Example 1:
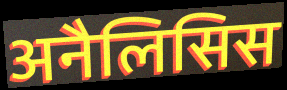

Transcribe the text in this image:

अनैलिसिस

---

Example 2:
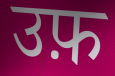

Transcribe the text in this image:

उफ़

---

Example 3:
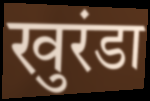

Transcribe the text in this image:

खुरंडा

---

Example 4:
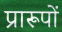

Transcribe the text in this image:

प्रारूपों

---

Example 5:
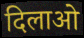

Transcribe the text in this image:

दिलाओ